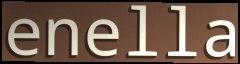
enella